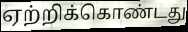
ஏற்றிக்கொண்டது